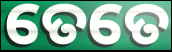
ତେତେ